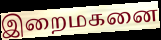
இறைமகனை